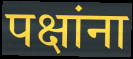
पक्षांना